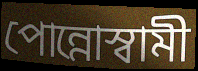
পোন্নোস্বামী